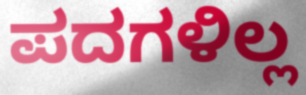
ಪದಗಳಿಲ್ಲ